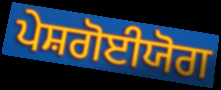
ਪੇਸ਼ਗੋਈਯੋਗ